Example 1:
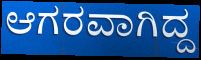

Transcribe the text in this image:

ಆಗರವಾಗಿದ್ದ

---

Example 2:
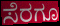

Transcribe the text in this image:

ಸೆರಗೂ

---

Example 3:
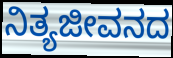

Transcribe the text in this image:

ನಿತ್ಯಜೀವನದ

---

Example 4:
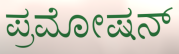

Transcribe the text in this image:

ಪ್ರಮೋಷನ್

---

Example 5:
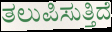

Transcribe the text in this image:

ತಲುಪಿಸುತ್ತಿದೆ